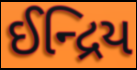
ઈન્દ્રિય